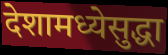
देशामध्येसुद्धा